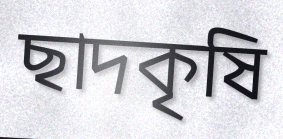
ছাদকৃষি